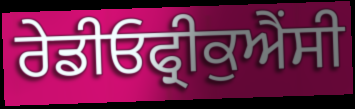
ਰੇਡੀਓਫ੍ਰੀਕੁਐਂਸੀ